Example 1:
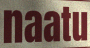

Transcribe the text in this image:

naatu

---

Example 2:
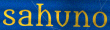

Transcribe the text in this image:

sahuno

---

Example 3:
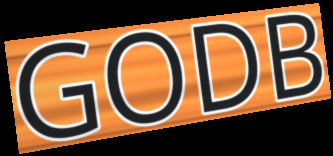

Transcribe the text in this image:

GODB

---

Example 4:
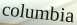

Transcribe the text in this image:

columbia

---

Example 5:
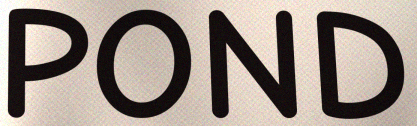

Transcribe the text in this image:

POND